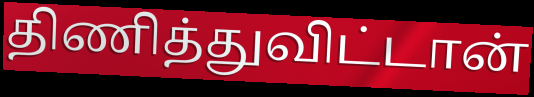
திணித்துவிட்டான்